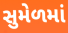
સુમેળમાં